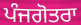
ਪੰਜਗੋਤਰਾ